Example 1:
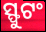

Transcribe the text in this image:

ସ୍ଫୁଟଂ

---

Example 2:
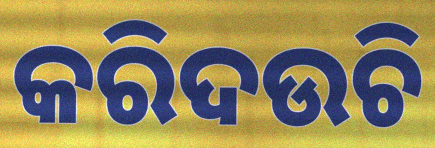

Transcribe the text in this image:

କରିଦଉଚି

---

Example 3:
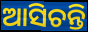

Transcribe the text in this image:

ଆସିଚନ୍ତି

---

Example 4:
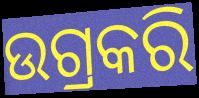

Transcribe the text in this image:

ଉଗ୍ରକରି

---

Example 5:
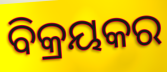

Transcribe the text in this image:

ବିକ୍ରୟକର